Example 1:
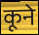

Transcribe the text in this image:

कूने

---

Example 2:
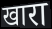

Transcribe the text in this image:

खारा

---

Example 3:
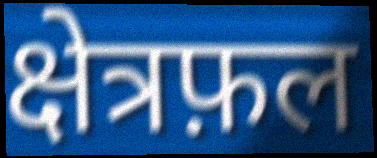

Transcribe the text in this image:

क्षेत्रफ़ल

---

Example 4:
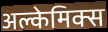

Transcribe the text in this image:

अल्केमिक्स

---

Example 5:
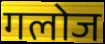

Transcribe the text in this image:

गलोज